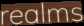
realms